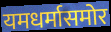
यमधर्मासमोर